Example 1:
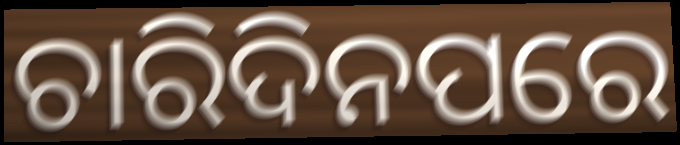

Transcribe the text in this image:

ଚାରିଦିନପରେ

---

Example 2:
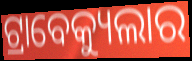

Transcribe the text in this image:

ଟ୍ରାବେକ୍ୟୁଲାର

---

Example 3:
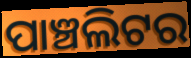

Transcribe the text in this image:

ପାଞ୍ଚଲିଟର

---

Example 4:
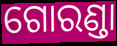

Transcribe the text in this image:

ଗୋରଣ୍ଡା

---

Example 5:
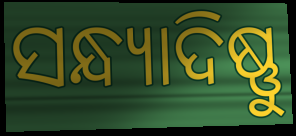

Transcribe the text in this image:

ସନ୍ଧ୍ୟାଦିଷ୍ଣୁ